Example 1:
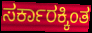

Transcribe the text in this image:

ಸರ್ಕಾರಕ್ಕಿಂತ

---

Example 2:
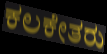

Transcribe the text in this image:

ಕಲಕೇತರು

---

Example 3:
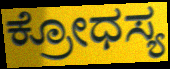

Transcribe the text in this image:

ಕ್ರೋಧಸ್ಯ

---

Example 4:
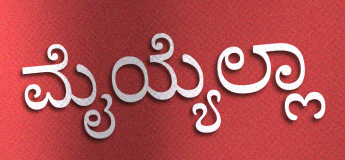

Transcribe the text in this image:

ಮೈಯ್ಯೆಲ್ಲಾ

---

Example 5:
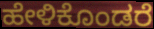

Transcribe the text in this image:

ಹೇಳಿಕೊಂಡರೆ